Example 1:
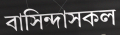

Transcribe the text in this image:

বাসিন্দাসকল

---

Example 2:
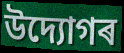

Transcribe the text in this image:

উদ্যোগৰ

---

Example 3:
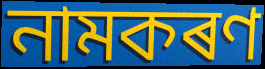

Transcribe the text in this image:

নামকৰণ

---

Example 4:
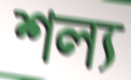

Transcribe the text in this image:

শল্য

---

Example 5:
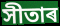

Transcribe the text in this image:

সীতাৰ